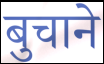
बुचाने